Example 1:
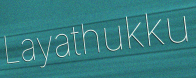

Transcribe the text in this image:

Layathukku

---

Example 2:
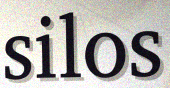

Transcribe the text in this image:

silos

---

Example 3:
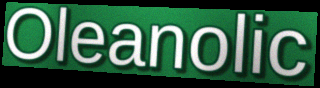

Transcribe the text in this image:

Oleanolic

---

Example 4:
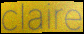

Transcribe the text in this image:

claire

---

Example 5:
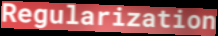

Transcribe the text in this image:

Regularization